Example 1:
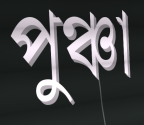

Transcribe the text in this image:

পুঞ্চা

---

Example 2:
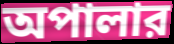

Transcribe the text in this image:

অপালার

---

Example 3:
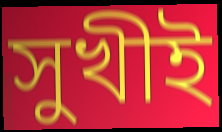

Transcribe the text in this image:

সুখীই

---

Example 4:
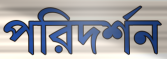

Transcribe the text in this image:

পরিদর্শন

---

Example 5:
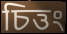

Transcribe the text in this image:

চিত্তং